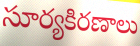
సూర్యకిరణాలు